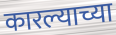
कारल्याच्या